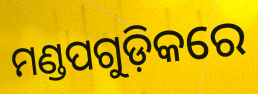
ମଣ୍ଡପଗୁଡ଼ିକରେ